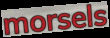
morsels